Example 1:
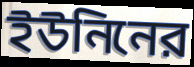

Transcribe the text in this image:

ইউনিনের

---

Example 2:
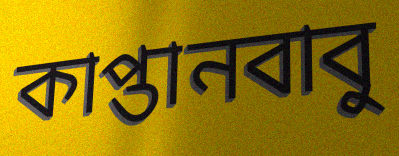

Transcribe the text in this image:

কাপ্তানবাবু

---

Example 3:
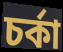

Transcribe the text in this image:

চর্কা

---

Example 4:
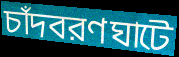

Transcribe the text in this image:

চাঁদবরণঘাটে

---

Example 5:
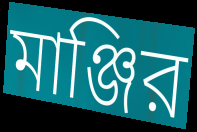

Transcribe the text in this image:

মাঞ্জির